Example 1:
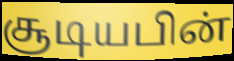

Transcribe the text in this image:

சூடியபின்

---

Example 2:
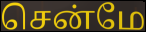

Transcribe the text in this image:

சென்மே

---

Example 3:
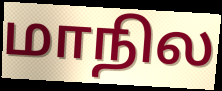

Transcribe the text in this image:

மாநில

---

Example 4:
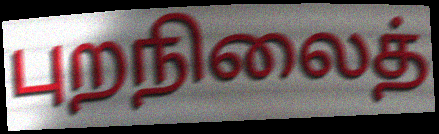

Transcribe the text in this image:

புறநிலைத்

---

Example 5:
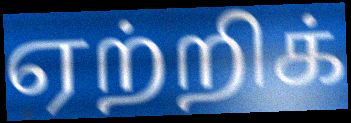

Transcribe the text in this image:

ஏற்றிக்